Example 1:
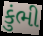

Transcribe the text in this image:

કુંભી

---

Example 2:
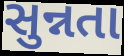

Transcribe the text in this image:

સુન્નતા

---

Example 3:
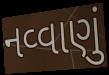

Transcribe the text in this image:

નવ્વાણું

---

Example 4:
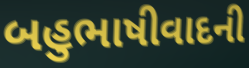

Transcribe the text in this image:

બહુભાષીવાદની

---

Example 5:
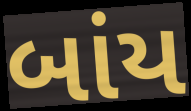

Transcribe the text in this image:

બાંય